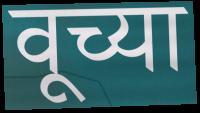
वूच्या